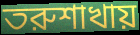
তরুশাখায়